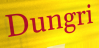
Dungri